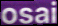
osai